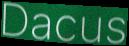
Dacus